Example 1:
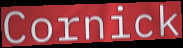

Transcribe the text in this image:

Cornick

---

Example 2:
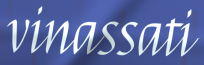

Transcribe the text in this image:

vinassati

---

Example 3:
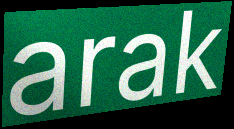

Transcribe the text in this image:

arak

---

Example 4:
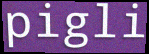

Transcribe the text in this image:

pigli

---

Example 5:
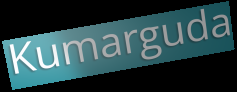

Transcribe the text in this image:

Kumarguda